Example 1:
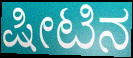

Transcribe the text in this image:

ಷೀಟಿನ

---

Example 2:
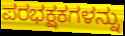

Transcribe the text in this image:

ಪರಭಕ್ಷಕಗಳನ್ನು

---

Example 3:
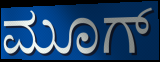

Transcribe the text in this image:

ಮೂಗ್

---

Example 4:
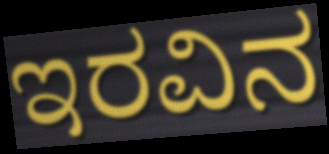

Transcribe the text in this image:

ಇರವಿನ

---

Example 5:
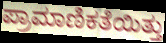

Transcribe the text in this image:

ಪ್ರಾಮಾಣಿಕತೆಯಿತ್ತು